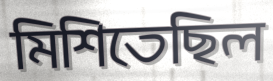
মিশিতেছিল